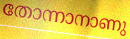
തോന്നാനാണു